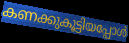
കണക്കുകൂട്ടിയപ്പോൾ